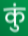
कुं